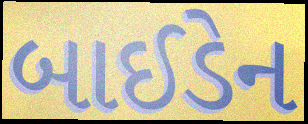
બાઈડેન